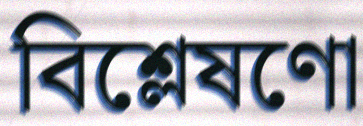
বিশ্লেষণো